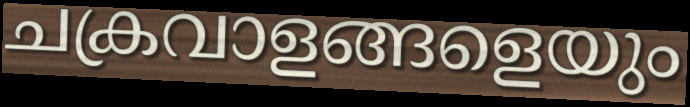
ചക്രവാളങ്ങളെയും